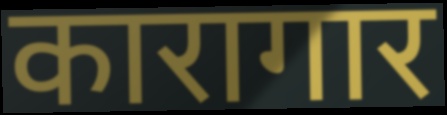
कारागार